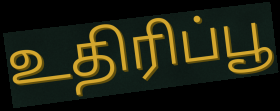
உதிரிப்பூ